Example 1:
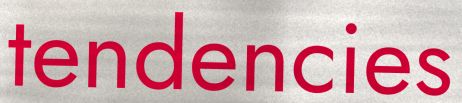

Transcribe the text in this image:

tendencies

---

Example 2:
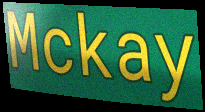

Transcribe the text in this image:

Mckay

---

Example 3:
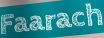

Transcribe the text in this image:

Faarach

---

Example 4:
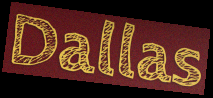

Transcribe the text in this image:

Dallas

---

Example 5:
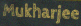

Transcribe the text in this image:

Mukharjee